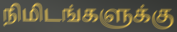
நிமிடங்களுக்கு